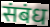
संबंध